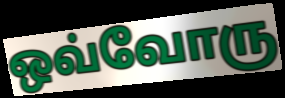
ஒவ்வோரு